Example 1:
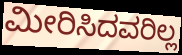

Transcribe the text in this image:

ಮೀರಿಸಿದವರಿಲ್ಲ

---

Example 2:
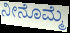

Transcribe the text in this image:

ನೀನೊಮ್ಮೆ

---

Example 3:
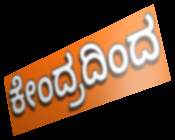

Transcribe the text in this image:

ಕೇಂದ್ರದಿಂದ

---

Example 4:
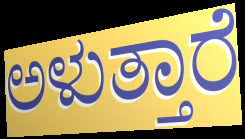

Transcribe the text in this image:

ಅಳುತ್ತಾರೆ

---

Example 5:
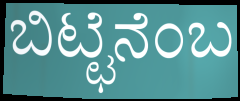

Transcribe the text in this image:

ಬಿಟ್ಟೆನೆಂಬ